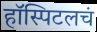
हॉस्पिटलचं